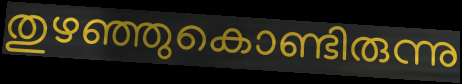
തുഴഞ്ഞുകൊണ്ടിരുന്നു